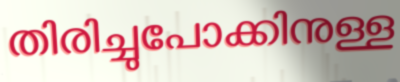
തിരിച്ചുപോക്കിനുള്ള